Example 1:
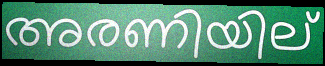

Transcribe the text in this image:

അരണിയില്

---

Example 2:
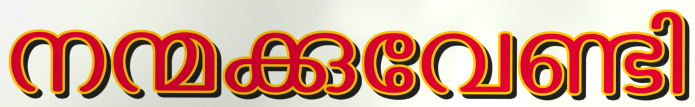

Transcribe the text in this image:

നന്മക്കുവേണ്ടി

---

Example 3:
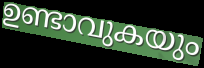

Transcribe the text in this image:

ഉണ്ടാവുകയും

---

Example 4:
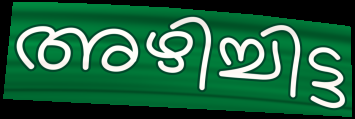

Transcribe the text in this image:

അഴിച്ചിട്ട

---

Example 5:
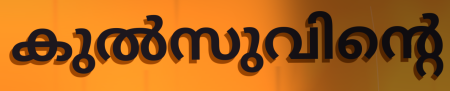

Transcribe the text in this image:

കുൽസുവിന്റെ